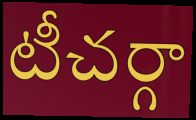
టీచర్గా